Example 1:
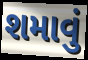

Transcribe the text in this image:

શમાવું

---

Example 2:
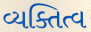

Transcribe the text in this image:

વ્યક્તિત્વ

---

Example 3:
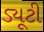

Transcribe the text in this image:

ડ્યૂટી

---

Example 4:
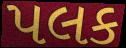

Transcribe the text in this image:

પલક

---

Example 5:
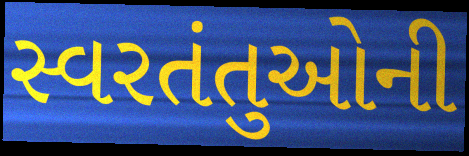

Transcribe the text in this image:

સ્વરતંતુઓની